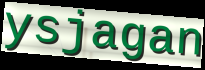
ysjagan